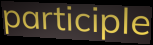
participle